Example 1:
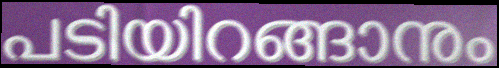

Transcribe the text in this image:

പടിയിറങ്ങാനും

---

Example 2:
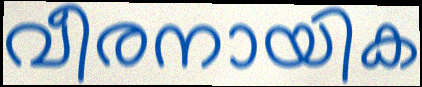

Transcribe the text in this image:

വീരനായിക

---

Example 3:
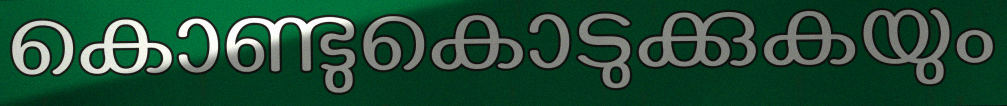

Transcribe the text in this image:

കൊണ്ടുകൊടുക്കുകയും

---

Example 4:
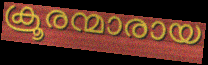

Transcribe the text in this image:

ക്രൂരന്മാരായ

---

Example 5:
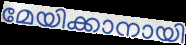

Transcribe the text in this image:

മേയിക്കാനായി